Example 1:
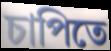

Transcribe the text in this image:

চাপিতে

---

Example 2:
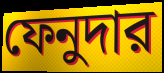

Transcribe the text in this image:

ফেনুদার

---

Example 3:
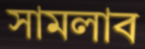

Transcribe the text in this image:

সামলাব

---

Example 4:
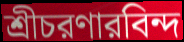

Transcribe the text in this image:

শ্রীচরণারবিন্দ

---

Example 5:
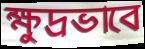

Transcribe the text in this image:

ক্ষুদ্রভাবে